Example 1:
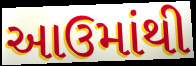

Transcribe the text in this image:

આઉમાંથી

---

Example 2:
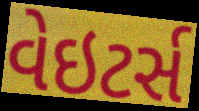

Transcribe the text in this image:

વેઇટર્સ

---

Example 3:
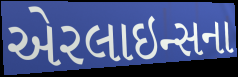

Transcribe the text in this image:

એરલાઇન્સના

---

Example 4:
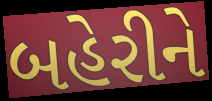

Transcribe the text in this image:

બહેરીને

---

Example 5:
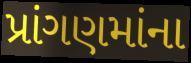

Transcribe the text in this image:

પ્રાંગણમાંના